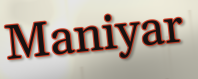
Maniyar